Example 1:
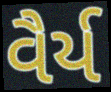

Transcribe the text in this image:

વૈર્ય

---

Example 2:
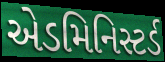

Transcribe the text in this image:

એડમિનિસ્ટર્ડ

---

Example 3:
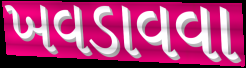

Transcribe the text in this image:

ખવડાવવા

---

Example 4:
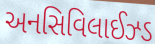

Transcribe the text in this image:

અનસિવિલાઈઝ્ડ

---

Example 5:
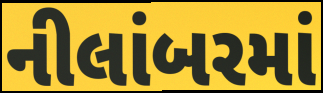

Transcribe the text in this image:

નીલાંબરમાં